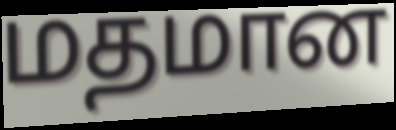
மதமான